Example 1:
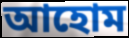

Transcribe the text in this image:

আহোম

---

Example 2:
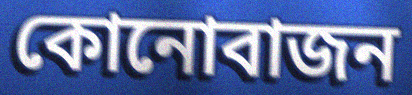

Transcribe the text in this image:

কোনোবাজন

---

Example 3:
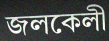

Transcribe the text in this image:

জলকেলী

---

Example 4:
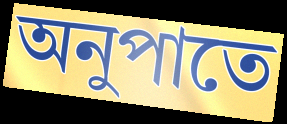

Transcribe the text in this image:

অনুপাতে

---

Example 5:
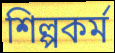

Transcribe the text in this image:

শিল্পকৰ্ম